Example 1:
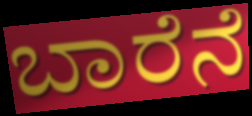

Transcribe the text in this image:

ಬಾರೆನೆ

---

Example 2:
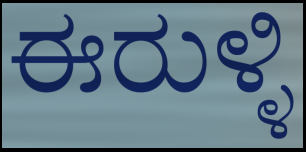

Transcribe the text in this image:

ಈರುಳ್ಳಿ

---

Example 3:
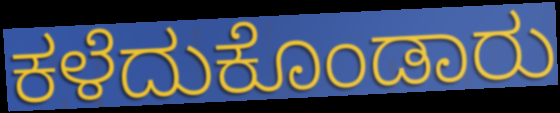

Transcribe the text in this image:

ಕಳೆದುಕೊಂಡಾರು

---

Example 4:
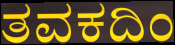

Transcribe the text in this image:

ತವಕದಿಂ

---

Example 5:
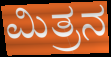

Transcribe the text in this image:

ಮಿತ್ರನ